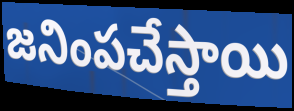
జనింపచేస్తాయి